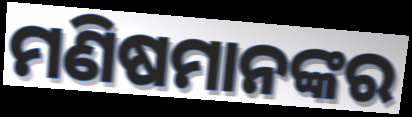
ମଣିଷମାନଙ୍କର